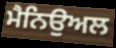
ਮੈਨਿਉਅਲ